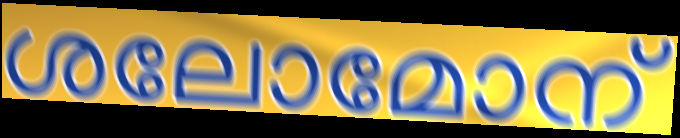
ശലോമോന്